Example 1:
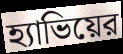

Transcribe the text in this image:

হ্যাভিয়ের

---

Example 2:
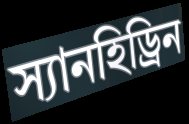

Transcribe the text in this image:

স্যানহিড্রিন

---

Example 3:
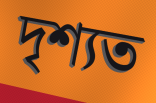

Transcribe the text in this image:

দৃশ্যত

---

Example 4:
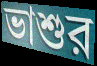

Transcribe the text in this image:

ভাশুর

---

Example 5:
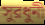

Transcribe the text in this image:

সুরধুনী